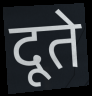
दूते